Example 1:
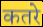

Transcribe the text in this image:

कतरे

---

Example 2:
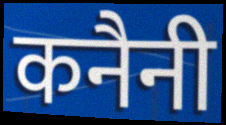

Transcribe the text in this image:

कनैनी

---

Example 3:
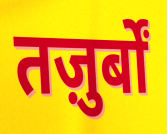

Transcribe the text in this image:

तज़ुर्बों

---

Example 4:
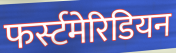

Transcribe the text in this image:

फर्स्टमेरिडियन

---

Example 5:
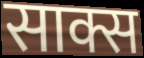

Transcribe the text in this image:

साक्स